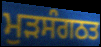
ਮੁੜਸੰਗਠਤ